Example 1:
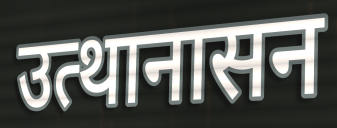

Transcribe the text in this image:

उत्थानासन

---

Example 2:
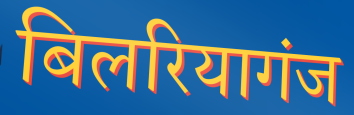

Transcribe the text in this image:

बिलरियागंज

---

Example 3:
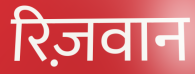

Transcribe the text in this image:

रिज़वान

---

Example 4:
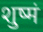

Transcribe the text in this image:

शुष्मं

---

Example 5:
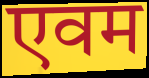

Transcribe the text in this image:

एवम